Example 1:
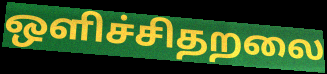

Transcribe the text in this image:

ஒளிச்சிதறலை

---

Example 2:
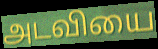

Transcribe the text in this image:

அடவியை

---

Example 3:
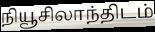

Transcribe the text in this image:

நியூசிலாந்திடம்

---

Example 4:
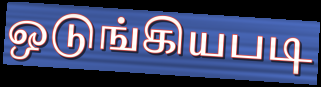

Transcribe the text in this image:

ஒடுங்கியபடி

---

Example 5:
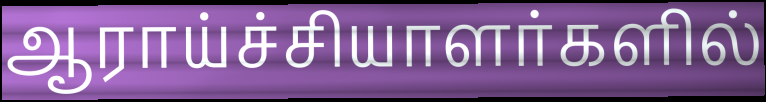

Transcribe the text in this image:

ஆராய்ச்சியாளர்களில்